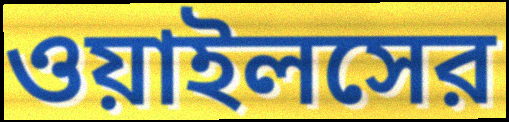
ওয়াইলসের